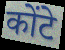
कोंटे